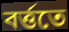
বর্ত্ততে